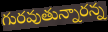
గురవుతున్నారన్న